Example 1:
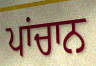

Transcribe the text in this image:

ਪਾਂਚਾਨ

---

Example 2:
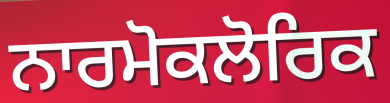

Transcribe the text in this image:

ਨਾਰਮੋਕਲੋਰਿਕ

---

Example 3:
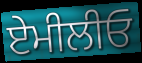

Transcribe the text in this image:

ਏਮੀਲੀਓ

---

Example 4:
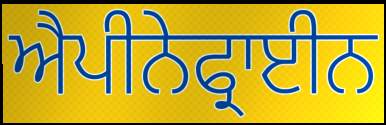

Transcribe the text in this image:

ਐਪੀਨੇਫ੍ਰਾਈਨ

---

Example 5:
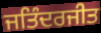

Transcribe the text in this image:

ਜਤਿੰਦਰਜੀਤ